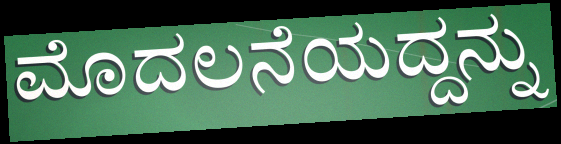
ಮೊದಲನೆಯದ್ದನ್ನು